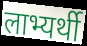
लाभ्यर्थी